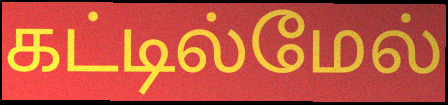
கட்டில்மேல்